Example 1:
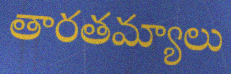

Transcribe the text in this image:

తారతమ్యాలు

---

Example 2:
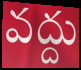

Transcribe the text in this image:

వద్దు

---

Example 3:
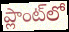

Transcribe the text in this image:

ప్లాంట్‌లో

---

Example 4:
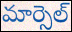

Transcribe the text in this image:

మార్సెల్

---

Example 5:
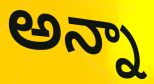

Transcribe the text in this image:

అన్నా